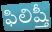
ఫిలిష్తీ